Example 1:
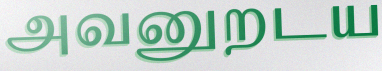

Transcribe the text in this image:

அவனுறடய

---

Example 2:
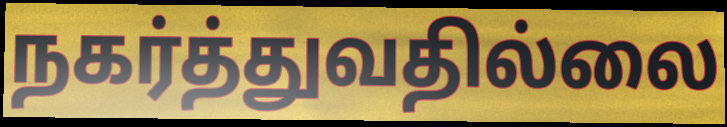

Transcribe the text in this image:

நகர்த்துவதில்லை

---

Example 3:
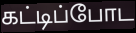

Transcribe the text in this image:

கட்டிப்போட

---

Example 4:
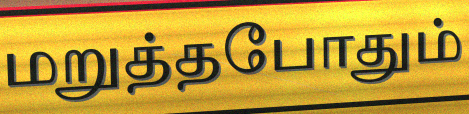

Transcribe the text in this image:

மறுத்தபோதும்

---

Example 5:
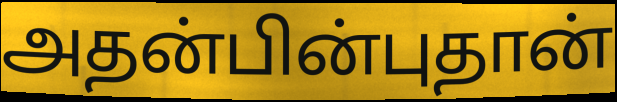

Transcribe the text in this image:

அதன்பின்புதான்